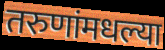
तरुणांमधल्या